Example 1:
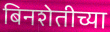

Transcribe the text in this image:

बिनशेतीच्या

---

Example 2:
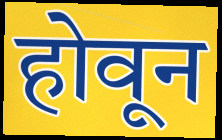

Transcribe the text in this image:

होवून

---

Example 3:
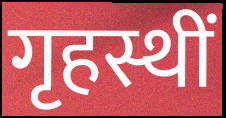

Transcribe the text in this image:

गृहस्थीं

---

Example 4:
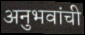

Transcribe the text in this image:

अनुभवांची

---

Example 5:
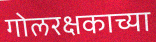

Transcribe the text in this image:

गोलरक्षकाच्या